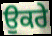
ਉਕਰੇ